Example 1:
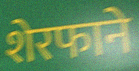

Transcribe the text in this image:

शेरफाने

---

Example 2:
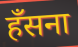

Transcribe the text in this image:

हँसना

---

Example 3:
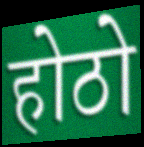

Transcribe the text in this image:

होठो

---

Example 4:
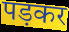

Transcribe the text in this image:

पड़कर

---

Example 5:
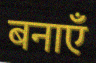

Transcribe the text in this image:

बनाएँ